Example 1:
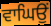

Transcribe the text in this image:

ਵਾਘਿਉਂ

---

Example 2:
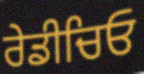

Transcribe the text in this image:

ਰੇਡੀਚਿਓ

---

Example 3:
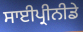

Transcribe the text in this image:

ਸਾਈਪ੍ਰੀਨੀਡੇ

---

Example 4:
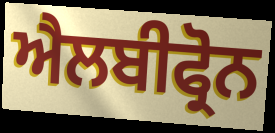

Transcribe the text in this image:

ਐਲਬੀਫ੍ਰੋਨ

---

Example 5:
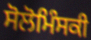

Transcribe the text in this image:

ਸੋਲੋਮਿੰਸਕੀ